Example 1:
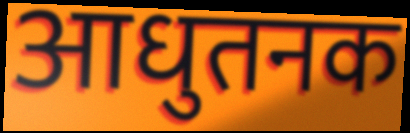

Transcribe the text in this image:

आधुतनक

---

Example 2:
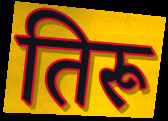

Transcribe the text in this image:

तिरू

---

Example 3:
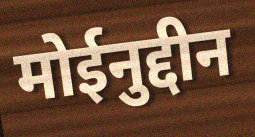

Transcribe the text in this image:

मोईनुद्दीन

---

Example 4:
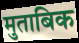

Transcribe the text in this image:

मुताबिक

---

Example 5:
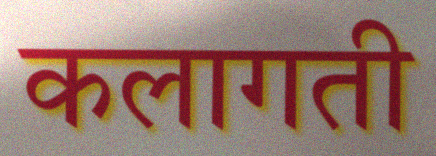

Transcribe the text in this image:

कलागती